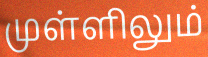
முள்ளிலும்